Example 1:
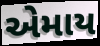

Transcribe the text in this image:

એમાય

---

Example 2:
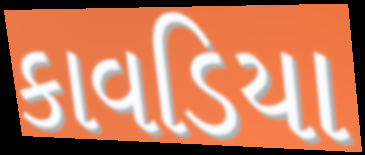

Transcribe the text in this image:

કાવડિયા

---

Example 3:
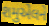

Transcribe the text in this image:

શમુએલને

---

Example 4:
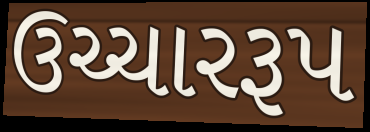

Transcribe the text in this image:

ઉચ્ચારરૂપ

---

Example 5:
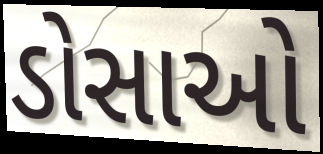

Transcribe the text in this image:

ડોસાઓ